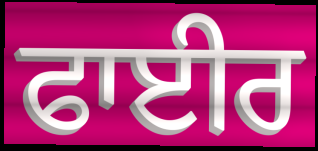
ਫਾਈਰ